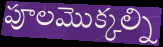
పూలమొక్కల్ని